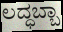
ಲದ್ಧಬ್ಬಾ